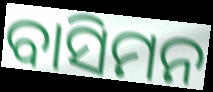
ବାସିମନ